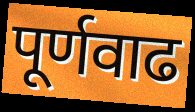
पूर्णवाढ